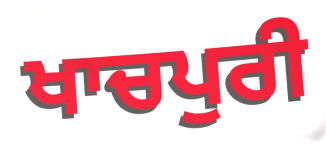
ਖਾਚਪੁਰੀ